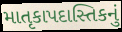
માતૃકાપદાસ્તિકનું